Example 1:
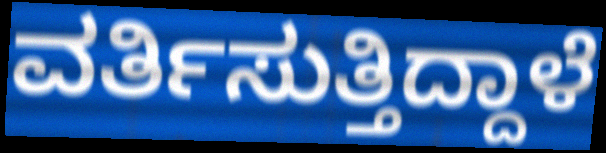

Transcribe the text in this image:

ವರ್ತಿಸುತ್ತಿದ್ದಾಳೆ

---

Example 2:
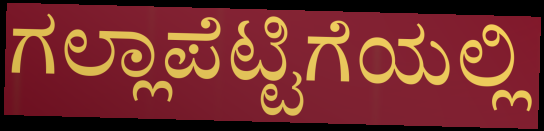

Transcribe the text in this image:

ಗಲ್ಲಾಪೆಟ್ಟಿಗೆಯಲ್ಲಿ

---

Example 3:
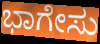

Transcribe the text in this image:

ಭಾಗೇಸು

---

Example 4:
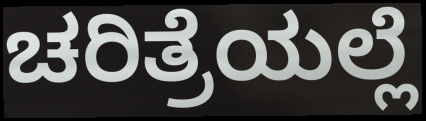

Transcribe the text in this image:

ಚರಿತ್ರೆಯಲ್ಲೆ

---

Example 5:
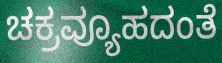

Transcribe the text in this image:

ಚಕ್ರವ್ಯೂಹದಂತೆ